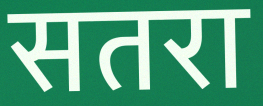
सतरा